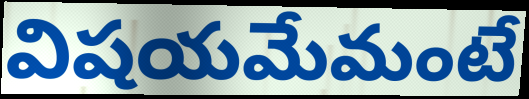
విషయమేమంటే